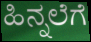
ಹಿನ್ನಲೆಗೆ